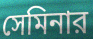
সেমিনার